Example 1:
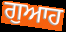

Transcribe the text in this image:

ਗੁਆਹ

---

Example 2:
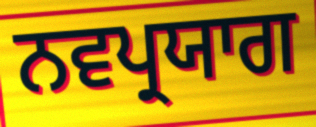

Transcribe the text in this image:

ਨਵਪ੍ਰਯਾਗ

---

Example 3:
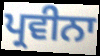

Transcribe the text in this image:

ਪ੍ਰਵੀਨਾ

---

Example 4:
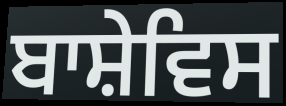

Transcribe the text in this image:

ਬਾਸ਼ੇਵਿਸ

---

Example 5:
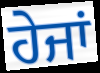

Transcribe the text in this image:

ਹੇਜਾਂ